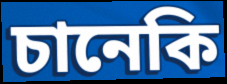
চানেকি